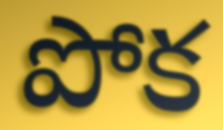
పోక